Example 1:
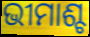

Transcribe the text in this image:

ଭୀମାଶ୍ଚ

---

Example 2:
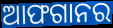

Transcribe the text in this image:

ଆଫଗାନର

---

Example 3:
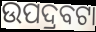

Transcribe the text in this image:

ଉପଦ୍ରବଟା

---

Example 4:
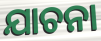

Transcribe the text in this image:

ଯାଚନା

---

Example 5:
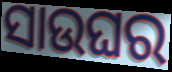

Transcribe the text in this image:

ସାଉଘର